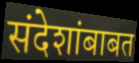
संदेशांबाबत